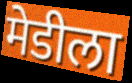
मेडीला